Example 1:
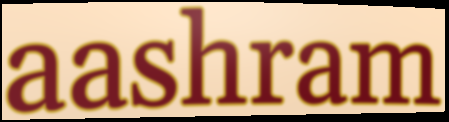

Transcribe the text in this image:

aashram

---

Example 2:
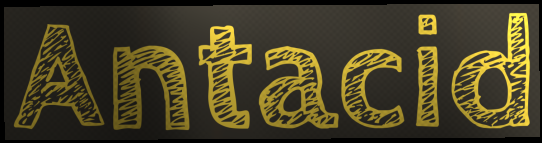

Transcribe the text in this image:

Antacid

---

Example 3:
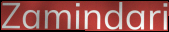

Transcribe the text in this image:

Zamindari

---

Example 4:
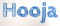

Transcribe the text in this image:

Hooja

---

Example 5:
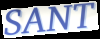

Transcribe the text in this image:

SANT